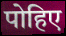
पोहिए